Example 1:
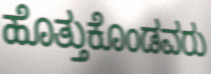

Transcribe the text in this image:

ಹೊತ್ತುಕೊಂಡವರು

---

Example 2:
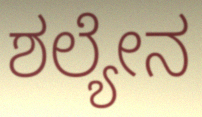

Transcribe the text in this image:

ಶಲ್ಯೇನ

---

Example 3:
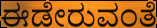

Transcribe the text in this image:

ಈಡೇರುವಂತೆ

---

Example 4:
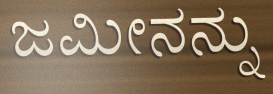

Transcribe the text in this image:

ಜಮೀನನ್ನು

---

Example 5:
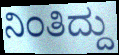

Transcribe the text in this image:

ನಿಂತಿದ್ದು